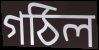
গঠিল